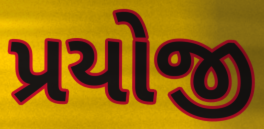
પ્રયોજી